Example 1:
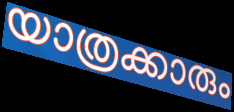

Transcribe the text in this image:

യാത്രക്കാരും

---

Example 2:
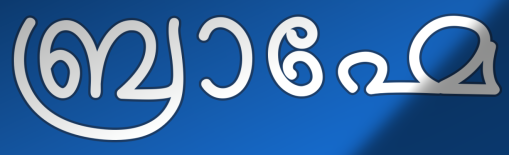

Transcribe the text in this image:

ബ്രാഹ്മേ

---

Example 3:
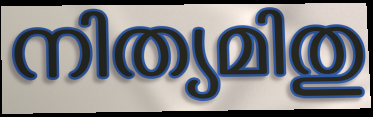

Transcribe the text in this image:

നിത്യമിതു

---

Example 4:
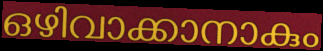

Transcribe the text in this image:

ഒഴിവാക്കാനാകും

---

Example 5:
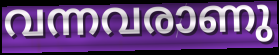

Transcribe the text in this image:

വന്നവരാണു